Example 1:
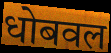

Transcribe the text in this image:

धोबवल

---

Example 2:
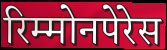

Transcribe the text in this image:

रिम्मोनपेरेस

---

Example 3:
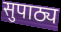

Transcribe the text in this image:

सुपाठ्य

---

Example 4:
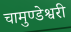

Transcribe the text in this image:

चामुण्डेश्वरी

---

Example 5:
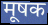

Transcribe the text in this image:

मूषक